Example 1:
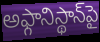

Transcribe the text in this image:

అఫ్గానిస్థాన్‌పై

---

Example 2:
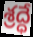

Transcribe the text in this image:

శ్రద్ధే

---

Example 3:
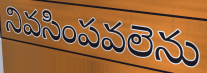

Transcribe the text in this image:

నివసింపవలెను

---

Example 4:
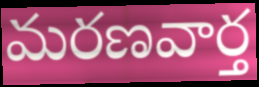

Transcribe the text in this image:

మరణవార్త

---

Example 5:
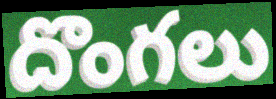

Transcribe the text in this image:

దొంగలు